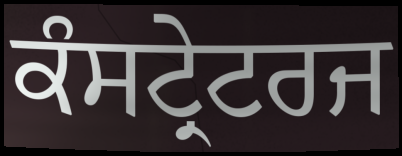
ਕੰਸਟ੍ਰੇਟਰਜ